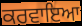
ਕਰਵਾਇਆ